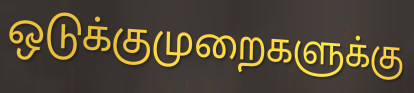
ஒடுக்குமுறைகளுக்கு